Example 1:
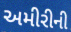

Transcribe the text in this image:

અમીરીની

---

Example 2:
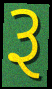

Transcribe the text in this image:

રૂ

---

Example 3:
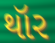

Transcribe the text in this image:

થૉર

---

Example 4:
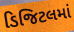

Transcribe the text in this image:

ડિજિટલમાં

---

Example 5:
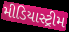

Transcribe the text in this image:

મીડિયાસ્ટ્રીમ